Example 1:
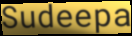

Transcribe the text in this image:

Sudeepa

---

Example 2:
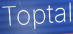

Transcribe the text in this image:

Toptal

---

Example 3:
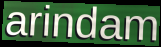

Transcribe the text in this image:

arindam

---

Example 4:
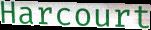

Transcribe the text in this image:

Harcourt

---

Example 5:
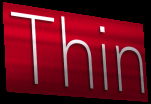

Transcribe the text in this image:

Thin